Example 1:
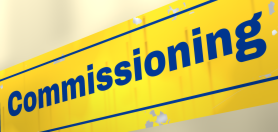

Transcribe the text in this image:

Commissioning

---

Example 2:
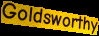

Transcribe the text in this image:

Goldsworthy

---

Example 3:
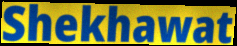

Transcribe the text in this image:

Shekhawat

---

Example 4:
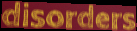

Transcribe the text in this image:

disorders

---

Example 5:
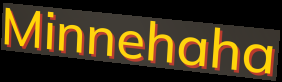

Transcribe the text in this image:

Minnehaha